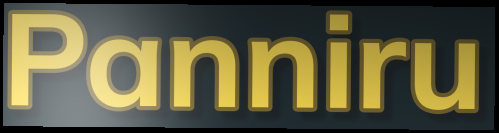
Panniru